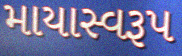
માયાસ્વરૂપ